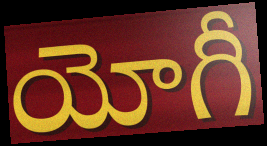
యోగీ